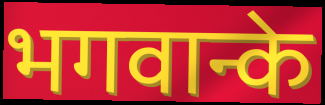
भगवान्के